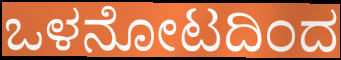
ಒಳನೋಟದಿಂದ